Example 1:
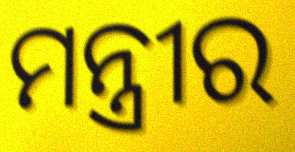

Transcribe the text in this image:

ମନ୍ତ୍ରୀର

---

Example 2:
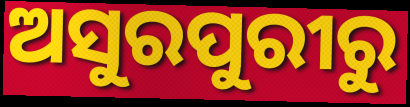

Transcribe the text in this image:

ଅସୁରପୁରୀରୁ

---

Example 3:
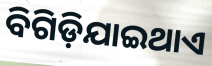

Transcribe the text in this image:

ବିଗିଡ଼ିଯାଇଥାଏ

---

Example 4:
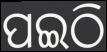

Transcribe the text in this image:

ପଇଠି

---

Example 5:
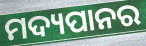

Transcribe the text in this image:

ମଦ୍ୟପାନର